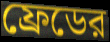
ফ্রেডের